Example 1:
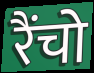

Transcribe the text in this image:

रैंचो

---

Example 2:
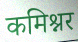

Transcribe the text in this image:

कमिश्नर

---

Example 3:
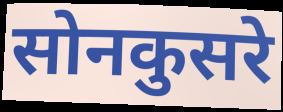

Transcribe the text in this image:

सोनकुसरे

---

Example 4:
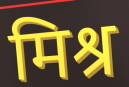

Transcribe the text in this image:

मिश्र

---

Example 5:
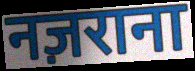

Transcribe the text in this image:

नज़राना